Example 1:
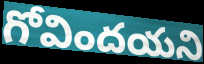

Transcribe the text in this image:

గోవిందయని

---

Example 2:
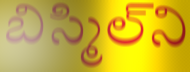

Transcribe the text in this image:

బిస్మిల్‌ని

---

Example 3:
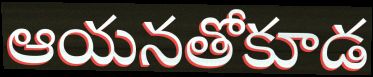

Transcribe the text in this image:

ఆయనతోకూడ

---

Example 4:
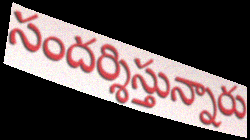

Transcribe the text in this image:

సందర్శిస్తున్నారు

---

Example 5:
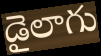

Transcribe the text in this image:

డైలాగు